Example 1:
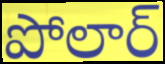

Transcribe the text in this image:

పోలార్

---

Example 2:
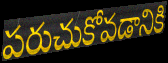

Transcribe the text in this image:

పరుచుకోవడానికి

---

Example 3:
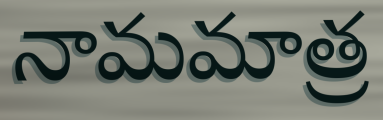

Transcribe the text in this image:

నామమాత్ర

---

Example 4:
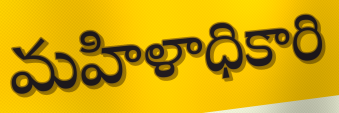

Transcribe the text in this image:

మహిళాధికారి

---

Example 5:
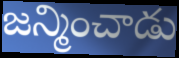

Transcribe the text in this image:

జన్మించాడు